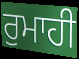
ਰੁਮਾਹੀ